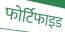
फोर्टिफाइड